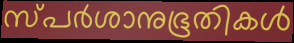
സ്പർശാനുഭൂതികൾ